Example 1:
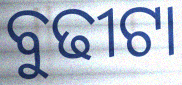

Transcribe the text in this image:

ବୁଢୀଟା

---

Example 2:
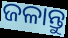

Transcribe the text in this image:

ଜଳାନ୍ତୁ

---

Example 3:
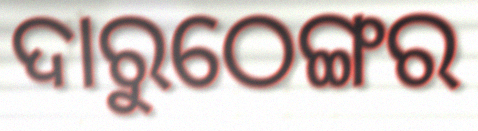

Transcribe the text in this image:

ଦାରୁଠେଙ୍ଗର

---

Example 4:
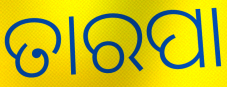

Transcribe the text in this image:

ତାରପା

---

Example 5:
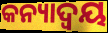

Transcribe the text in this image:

କନ୍ୟାଦ୍ୱୟ